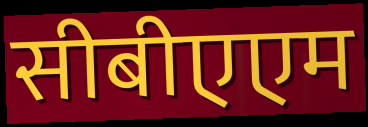
सीबीएएम